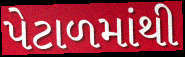
પેટાળમાંથી